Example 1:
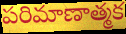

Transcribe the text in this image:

పరిమాణాత్మక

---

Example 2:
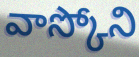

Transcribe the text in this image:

వాస్కోని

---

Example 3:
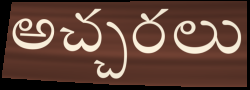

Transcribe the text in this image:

అచ్చరలు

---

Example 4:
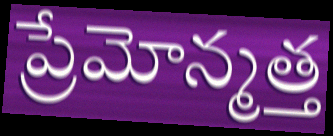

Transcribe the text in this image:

ప్రేమోన్మత్త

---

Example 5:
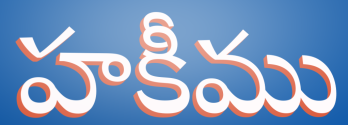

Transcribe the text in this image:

హకీము